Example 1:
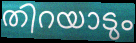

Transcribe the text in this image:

തിറയാടും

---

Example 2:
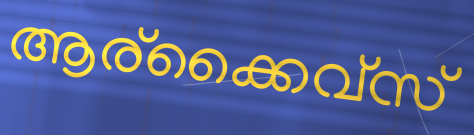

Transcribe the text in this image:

ആര്ക്കൈവ്സ്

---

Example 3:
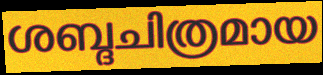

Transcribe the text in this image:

ശബ്ദചിത്രമായ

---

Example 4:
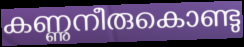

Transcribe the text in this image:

കണ്ണുനീരുകൊണ്ടു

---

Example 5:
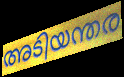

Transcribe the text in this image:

അടിയന്തര